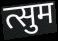
त्सुम